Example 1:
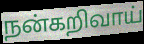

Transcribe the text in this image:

நன்கறிவாய்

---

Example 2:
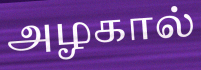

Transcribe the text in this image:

அழகால்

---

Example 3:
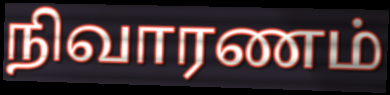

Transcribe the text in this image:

நிவாரணம்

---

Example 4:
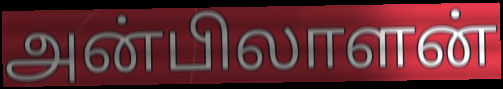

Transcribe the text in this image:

அன்பிலாளன்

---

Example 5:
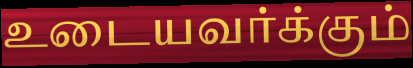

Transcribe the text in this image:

உடையவர்க்கும்